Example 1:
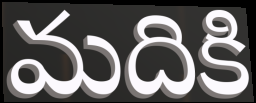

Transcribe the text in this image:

మదికి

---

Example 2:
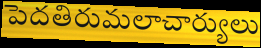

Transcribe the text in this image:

పెదతిరుమలాచార్యులు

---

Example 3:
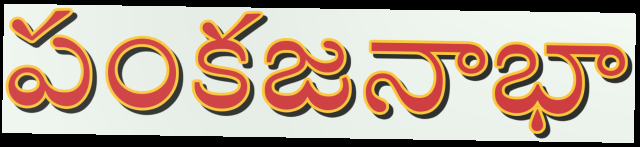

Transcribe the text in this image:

పంకజనాభా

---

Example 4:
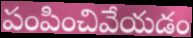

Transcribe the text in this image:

పంపించివేయడం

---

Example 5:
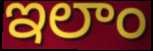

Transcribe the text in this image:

ఇలాం